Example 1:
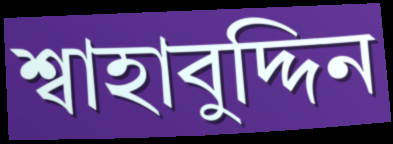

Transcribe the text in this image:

শ্বাহাবুদ্দিন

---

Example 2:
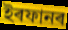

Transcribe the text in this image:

ইৰফানৰ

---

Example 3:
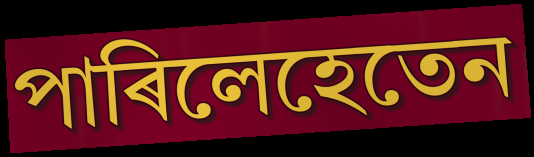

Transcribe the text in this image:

পাৰিলেহেতেন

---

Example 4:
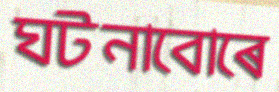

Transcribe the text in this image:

ঘটনাবোৰে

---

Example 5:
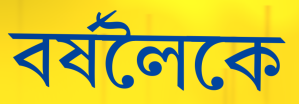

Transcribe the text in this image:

বৰ্ষলৈকে